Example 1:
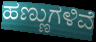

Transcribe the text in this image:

ಹಣ್ಣುಗಳಿವೆ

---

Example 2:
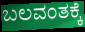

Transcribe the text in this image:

ಬಲವಂತಕ್ಕೆ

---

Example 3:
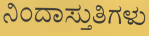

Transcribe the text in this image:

ನಿಂದಾಸ್ತುತಿಗಳು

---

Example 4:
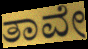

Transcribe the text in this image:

ತಾವೇ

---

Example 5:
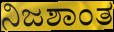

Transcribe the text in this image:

ನಿಜಶಾಂತ